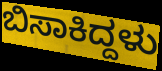
ಬಿಸಾಕಿದ್ದಳು